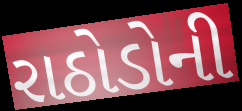
રાઠોડોની